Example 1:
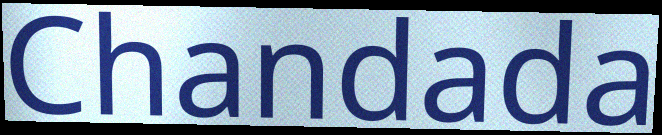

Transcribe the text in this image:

Chandada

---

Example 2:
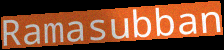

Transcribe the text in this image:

Ramasubban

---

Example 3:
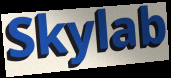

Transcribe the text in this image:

Skylab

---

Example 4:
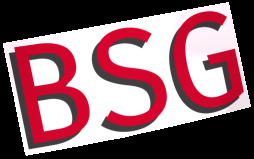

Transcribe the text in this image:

BSG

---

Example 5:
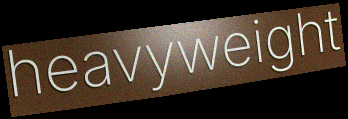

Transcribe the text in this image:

heavyweight